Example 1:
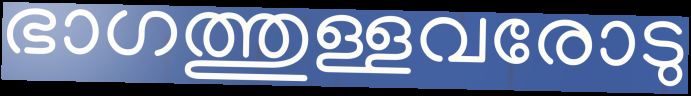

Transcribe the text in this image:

ഭാഗത്തുള്ളവരോടു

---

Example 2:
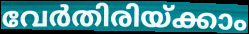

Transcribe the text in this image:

വേർതിരിയ്ക്കാം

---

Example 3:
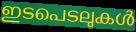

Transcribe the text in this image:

ഇടപെടലുകൾ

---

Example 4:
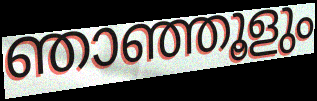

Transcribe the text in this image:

ഞാഞ്ഞൂളും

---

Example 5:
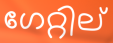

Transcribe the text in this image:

ഗേറ്റില്